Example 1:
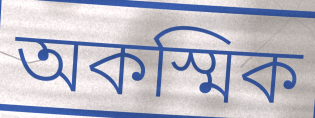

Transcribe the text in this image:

অকস্মিক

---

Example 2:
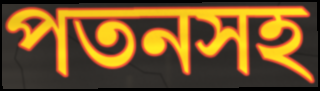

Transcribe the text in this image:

পতনসহ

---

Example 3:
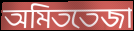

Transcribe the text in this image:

অমিততেজা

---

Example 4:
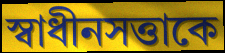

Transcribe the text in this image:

স্বাধীনসত্তাকে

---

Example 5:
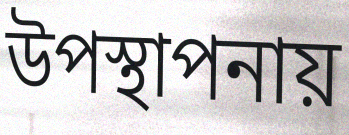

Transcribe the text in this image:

উপস্থাপনায়